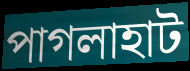
পাগলাহাট